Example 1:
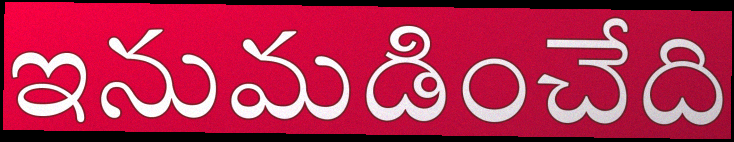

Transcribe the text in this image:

ఇనుమడించేది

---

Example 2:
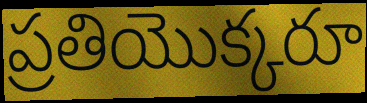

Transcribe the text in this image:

ప్రతియొక్కరూ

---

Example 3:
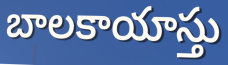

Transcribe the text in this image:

బాలకాయాస్తు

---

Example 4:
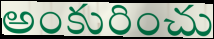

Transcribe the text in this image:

అంకురించు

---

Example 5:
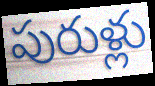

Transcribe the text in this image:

పురుళ్లు